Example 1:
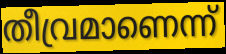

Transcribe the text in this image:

തീവ്രമാണെന്ന്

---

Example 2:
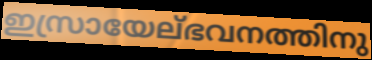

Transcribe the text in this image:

ഇസ്രായേല്ഭവനത്തിനു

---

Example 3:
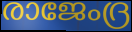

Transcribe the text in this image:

രാജേംദ്ര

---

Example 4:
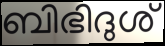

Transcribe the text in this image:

ബിഭിദുശ്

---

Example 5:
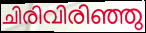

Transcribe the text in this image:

ചിരിവിരിഞ്ഞു